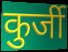
कुर्जी